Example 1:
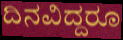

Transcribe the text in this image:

ದಿನವಿದ್ದರೂ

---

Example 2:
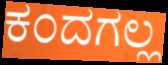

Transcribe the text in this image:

ಕಂದಗಲ್ಲ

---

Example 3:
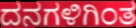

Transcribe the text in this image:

ದನಗಳಿಗಿಂತ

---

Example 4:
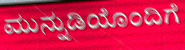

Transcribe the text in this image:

ಮುನ್ನುಡಿಯೊಂದಿಗೆ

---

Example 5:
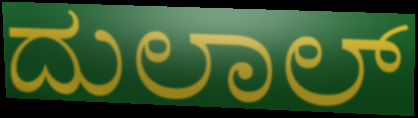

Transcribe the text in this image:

ದುಲಾಲ್